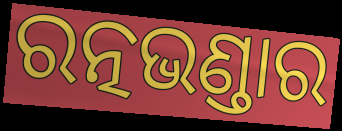
ରତ୍ନଭଣ୍ଡାର